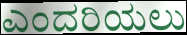
ಎಂದರಿಯಲು